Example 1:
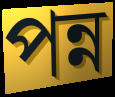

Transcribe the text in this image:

পন্ন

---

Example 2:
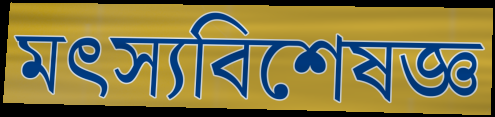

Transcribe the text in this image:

মৎস্যবিশেষজ্ঞ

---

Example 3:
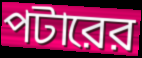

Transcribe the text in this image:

পটারের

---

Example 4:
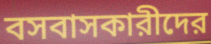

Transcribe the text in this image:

বসবাসকারীদের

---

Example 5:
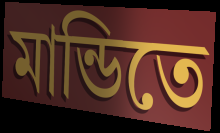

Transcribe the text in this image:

মান্ডিতে